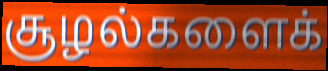
சூழல்களைக்